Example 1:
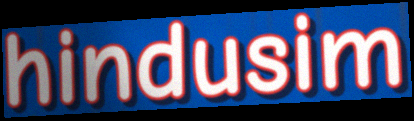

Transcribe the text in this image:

hindusim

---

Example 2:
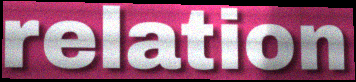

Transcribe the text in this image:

relation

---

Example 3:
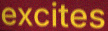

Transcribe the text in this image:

excites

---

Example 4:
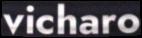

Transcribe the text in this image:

vicharo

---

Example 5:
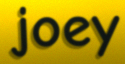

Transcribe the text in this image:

joey